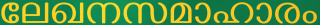
ലേഖനസമാഹാരം